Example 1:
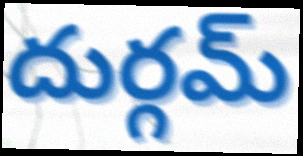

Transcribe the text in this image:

దుర్గమ్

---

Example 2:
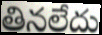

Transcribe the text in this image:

తినలేదు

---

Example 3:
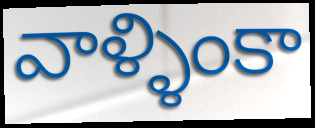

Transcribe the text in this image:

వాళ్ళింకా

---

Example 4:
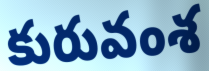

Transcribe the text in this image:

కురువంశ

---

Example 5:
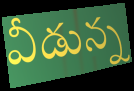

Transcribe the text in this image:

వీడున్న